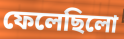
ফেলেছিলো